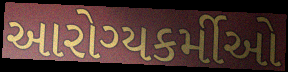
આરોગ્યકર્મીઓ